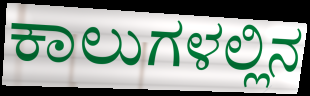
ಕಾಲುಗಳಲ್ಲಿನ